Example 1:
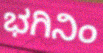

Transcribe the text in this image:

ಭಗಿನಿಂ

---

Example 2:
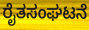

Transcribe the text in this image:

ರೈತಸಂಘಟನೆ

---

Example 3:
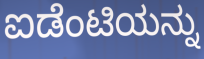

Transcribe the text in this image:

ಐಡೆಂಟಿಯನ್ನು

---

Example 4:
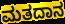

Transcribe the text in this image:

ಮತದಾನ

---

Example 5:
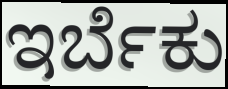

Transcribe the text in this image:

ಇರ್ಬೆಕು